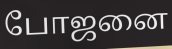
போஜனை